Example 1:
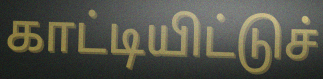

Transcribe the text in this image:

காட்டியிட்டுச்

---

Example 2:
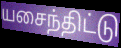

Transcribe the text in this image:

யசைந்திட்டு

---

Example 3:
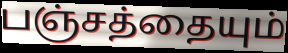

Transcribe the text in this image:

பஞ்சத்தையும்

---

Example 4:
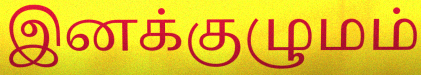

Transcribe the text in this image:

இனக்குழுமம்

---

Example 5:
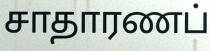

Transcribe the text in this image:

சாதாரணப்